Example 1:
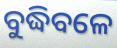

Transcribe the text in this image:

ବୁଦ୍ଧିବଳେ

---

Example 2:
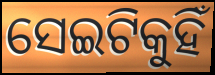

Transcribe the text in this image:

ସେଇଟିକୁହିଁ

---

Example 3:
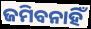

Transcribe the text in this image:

ଜମିବନାହିଁ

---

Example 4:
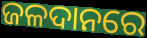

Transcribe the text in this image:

ଜଳଦାନରେ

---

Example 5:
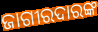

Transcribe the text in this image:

ଜାଗୀରଦାରଙ୍କ